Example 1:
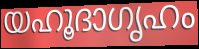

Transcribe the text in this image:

യഹൂദാഗൃഹം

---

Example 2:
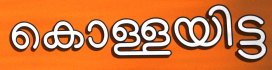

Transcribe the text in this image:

കൊള്ളയിട്ട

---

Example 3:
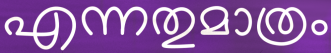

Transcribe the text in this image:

എന്നതുമാത്രം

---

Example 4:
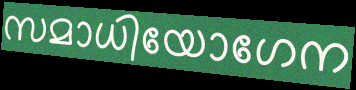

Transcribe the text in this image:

സമാധിയോഗേന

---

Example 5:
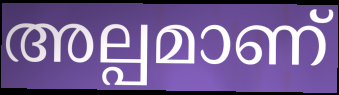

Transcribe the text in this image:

അല്പമാണ്